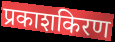
प्रकाशकिरण